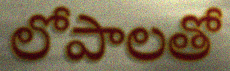
లోపాలతో